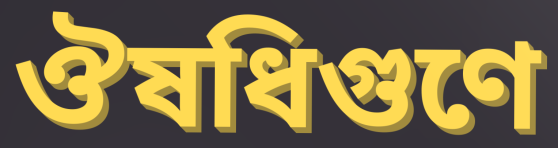
ঔষধিগুণে